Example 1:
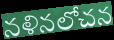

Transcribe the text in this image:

నళినలోచన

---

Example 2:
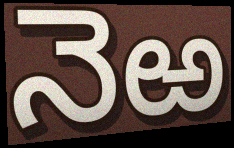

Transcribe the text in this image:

నెఱ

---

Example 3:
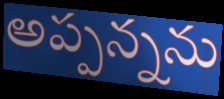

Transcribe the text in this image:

అప్పన్నను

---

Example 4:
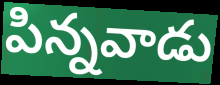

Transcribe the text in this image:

పిన్నవాడు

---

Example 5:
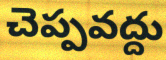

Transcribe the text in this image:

చెప్పవద్దు